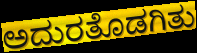
ಅದುರತೊಡಗಿತು